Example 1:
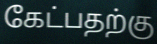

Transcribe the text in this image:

கேட்பதற்கு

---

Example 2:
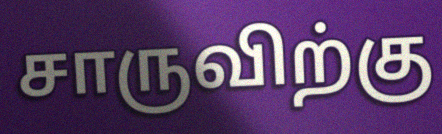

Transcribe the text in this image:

சாருவிற்கு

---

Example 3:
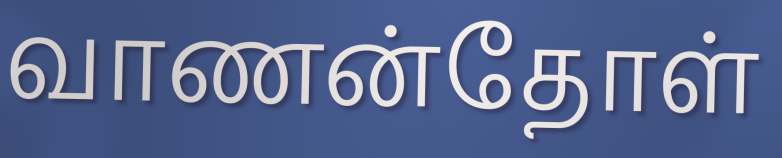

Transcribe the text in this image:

வாணன்தோள்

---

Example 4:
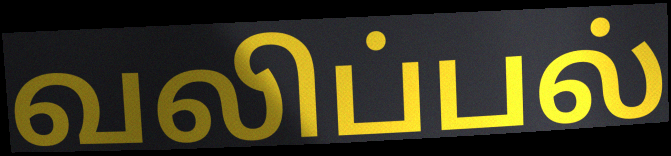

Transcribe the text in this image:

வலிப்பல்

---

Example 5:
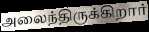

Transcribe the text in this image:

அலைந்திருக்கிறார்